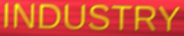
INDUSTRY